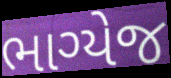
ભાગ્યેજ